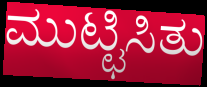
ಮುಟ್ಟಿಸಿತು